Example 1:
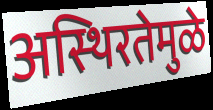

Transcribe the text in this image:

अस्थिरतेमुळे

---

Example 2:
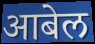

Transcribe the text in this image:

आबेल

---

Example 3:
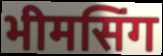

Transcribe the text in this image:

भीमसिंग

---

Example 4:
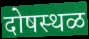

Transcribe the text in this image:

दोषस्थळ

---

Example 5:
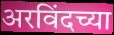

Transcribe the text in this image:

अरविंदच्या